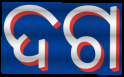
ଦଗ